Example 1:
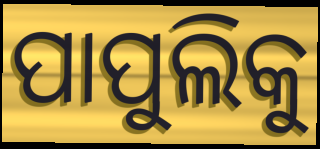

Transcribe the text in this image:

ପାପୁଲିକୁ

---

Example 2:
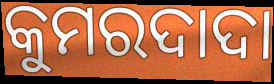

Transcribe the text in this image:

କୁମରଦାଦା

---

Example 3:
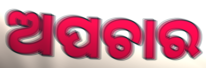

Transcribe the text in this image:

ଅପଚାର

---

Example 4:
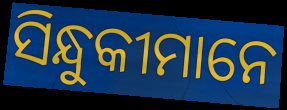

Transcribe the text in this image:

ସିନ୍ଧୁକୀମାନେ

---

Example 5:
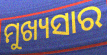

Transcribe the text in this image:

ମୁଖ୍ୟସାର